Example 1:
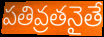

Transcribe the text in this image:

పతివ్రతనైతే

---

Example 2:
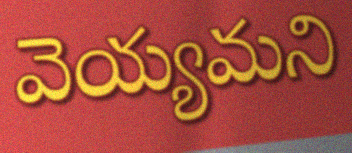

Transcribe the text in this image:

వెయ్యమని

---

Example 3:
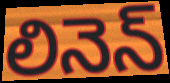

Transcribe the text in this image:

లినెన్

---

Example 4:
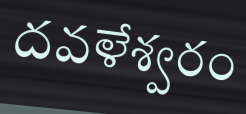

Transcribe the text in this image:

దవళేశ్వరం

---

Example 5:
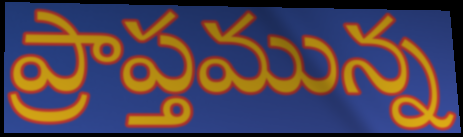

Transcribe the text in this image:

ప్రాప్తమున్న